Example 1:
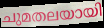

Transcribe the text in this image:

ചുമതലയായി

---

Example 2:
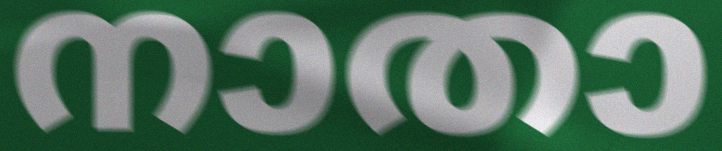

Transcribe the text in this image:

നാതാ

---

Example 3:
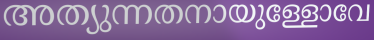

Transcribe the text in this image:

അത്യുന്നതനായുള്ളോവേ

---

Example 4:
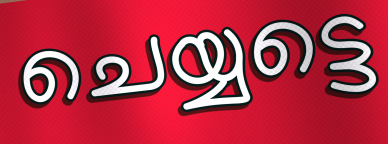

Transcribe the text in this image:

ചെയ്യട്ടെ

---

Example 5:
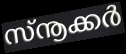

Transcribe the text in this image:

സ്നൂക്കർ